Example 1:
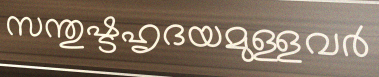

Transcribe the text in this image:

സന്തുഷ്ടഹൃദയമുള്ളവർ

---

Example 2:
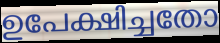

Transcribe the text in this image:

ഉപേക്ഷിച്ചതോ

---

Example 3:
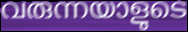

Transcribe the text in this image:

വരുന്നയാളുടെ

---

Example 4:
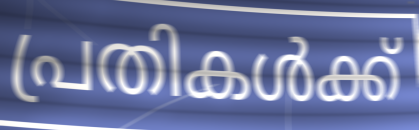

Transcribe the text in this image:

പ്രതികൾക്ക്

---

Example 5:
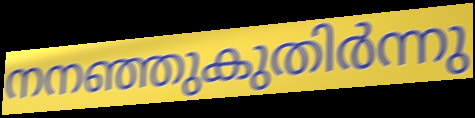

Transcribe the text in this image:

നനഞ്ഞുകുതിർന്നു